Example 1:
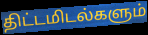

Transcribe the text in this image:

திட்டமிடல்களும்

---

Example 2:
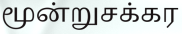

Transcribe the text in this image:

மூன்றுசக்கர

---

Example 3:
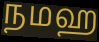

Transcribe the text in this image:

நமஹ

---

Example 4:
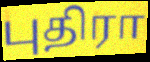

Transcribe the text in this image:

புதிரா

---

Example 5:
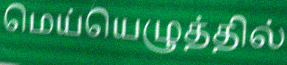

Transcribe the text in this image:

மெய்யெழுத்தில்